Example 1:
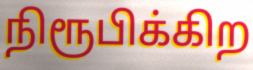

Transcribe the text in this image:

நிரூபிக்கிற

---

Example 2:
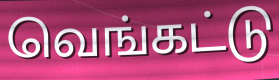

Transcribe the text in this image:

வெங்கட்டு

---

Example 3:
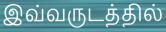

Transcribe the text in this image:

இவ்வருடத்தில்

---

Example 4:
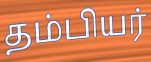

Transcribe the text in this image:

தம்பியர்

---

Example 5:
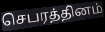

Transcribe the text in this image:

செபரத்தினம்